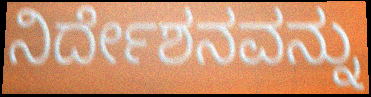
ನಿರ್ದೇಶನವನ್ನು